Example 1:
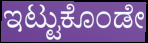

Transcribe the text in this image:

ಇಟ್ಟುಕೊಂಡೇ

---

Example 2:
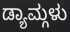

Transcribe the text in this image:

ಡ್ಯಾಮ್ಗಳು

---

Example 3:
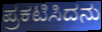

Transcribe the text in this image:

ಪ್ರಕಟಿಸಿದನು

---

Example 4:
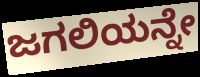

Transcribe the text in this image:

ಜಗಲಿಯನ್ನೇ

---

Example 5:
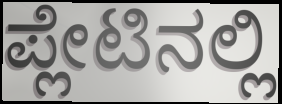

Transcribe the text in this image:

ಪ್ಲೇಟಿನಲ್ಲಿ